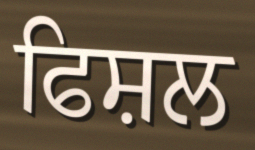
ਫਿਸ਼ਲ